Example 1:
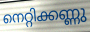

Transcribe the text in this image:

നെറ്റിക്കണ്ണു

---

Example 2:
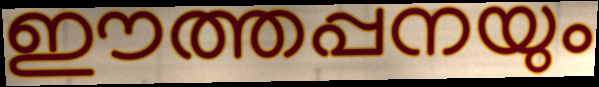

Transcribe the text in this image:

ഈത്തപ്പനയും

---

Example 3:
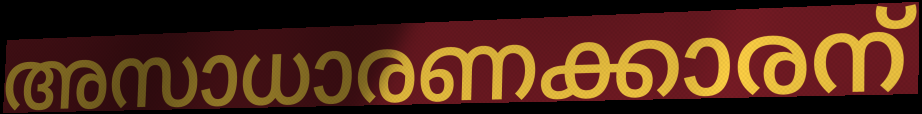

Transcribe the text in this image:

അസാധാരണക്കാരന്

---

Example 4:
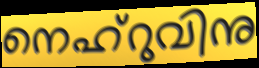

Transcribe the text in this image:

നെഹ്റുവിനു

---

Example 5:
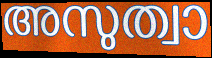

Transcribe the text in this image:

അസുത്വാ